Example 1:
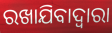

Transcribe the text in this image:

ରଖାଯିବାଦ୍ଵାରା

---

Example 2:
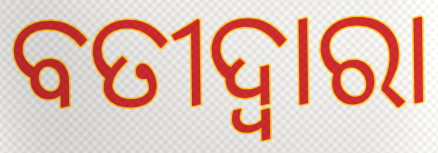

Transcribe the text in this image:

ବତୀଦ୍ୱାରା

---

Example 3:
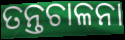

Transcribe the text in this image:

ତନ୍ତଚାଳନା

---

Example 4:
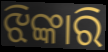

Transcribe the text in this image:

ଝିଙ୍କାରି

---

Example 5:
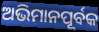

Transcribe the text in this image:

ଅଭିମାନପୂର୍ବକ